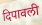
दिपावली